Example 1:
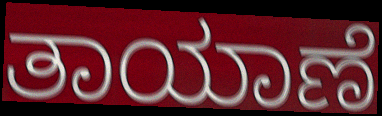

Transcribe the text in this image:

ತಾಯಾಣೆ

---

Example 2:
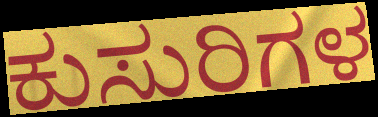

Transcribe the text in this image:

ಕುಸುರಿಗಳ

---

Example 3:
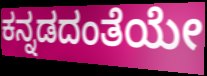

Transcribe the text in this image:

ಕನ್ನಡದಂತೆಯೇ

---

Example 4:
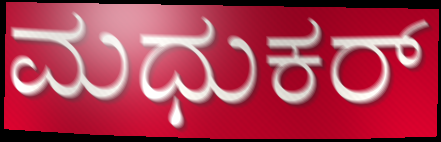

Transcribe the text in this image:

ಮಧುಕರ್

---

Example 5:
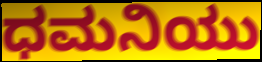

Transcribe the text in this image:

ಧಮನಿಯು